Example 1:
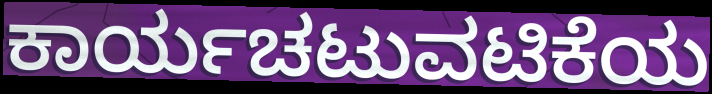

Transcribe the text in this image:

ಕಾರ್ಯಚಟುವಟಿಕೆಯ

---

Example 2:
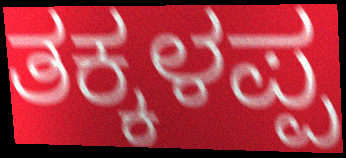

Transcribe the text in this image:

ತಕ್ಕಳಪ್ಪ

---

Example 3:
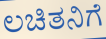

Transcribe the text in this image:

ಲಚಿತನಿಗೆ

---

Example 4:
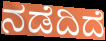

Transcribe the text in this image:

ನಡೆದಿದೆ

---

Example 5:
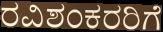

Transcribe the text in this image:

ರವಿಶಂಕರರಿಗೆ